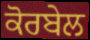
ਕੋਰਬੇਲ